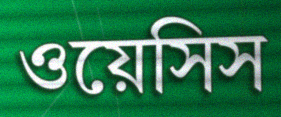
ওয়েসিস